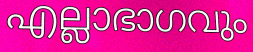
എല്ലാഭാഗവും